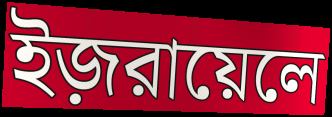
ইজ়রায়েলে